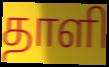
தாளி